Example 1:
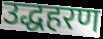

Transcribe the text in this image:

उद्धहरण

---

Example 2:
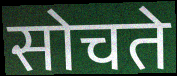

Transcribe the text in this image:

सोचते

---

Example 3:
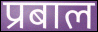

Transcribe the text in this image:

प्रबाल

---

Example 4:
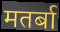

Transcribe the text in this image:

मतर्बा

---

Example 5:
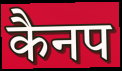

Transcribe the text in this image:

कैनप